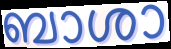
ബാശാ